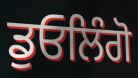
ਡੁਓਲਿੰਗੋ